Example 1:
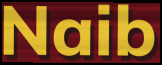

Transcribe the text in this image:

Naib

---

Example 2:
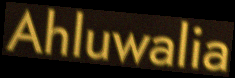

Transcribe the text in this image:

Ahluwalia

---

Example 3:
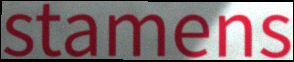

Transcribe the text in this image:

stamens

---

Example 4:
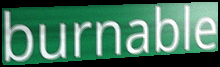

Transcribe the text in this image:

burnable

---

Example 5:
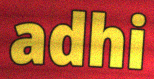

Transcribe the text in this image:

adhi